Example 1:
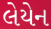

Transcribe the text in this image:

લેયેન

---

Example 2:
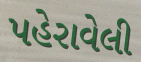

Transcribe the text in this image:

પહેરાવેલી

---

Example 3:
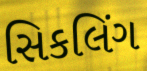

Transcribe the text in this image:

સિકલિંગ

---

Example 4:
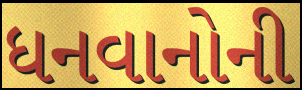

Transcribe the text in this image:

ધનવાનોની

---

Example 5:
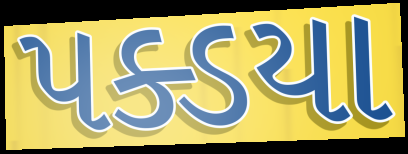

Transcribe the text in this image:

પક્ડયા